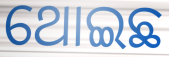
ଥୋଇଛ